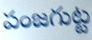
పంజగుట్ట